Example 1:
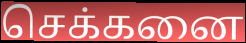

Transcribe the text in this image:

செக்கனை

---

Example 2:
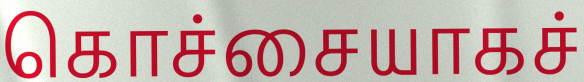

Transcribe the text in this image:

கொச்சையாகச்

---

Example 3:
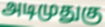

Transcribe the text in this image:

அடிமுதுகு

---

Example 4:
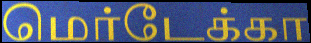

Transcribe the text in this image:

மெர்டேக்கா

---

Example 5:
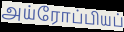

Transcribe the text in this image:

அய்ரோப்பியப்